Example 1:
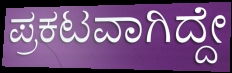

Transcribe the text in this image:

ಪ್ರಕಟವಾಗಿದ್ದೇ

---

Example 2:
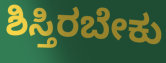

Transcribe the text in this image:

ಶಿಸ್ತಿರಬೇಕು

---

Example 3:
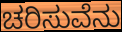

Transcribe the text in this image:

ಚರಿಸುವೆನು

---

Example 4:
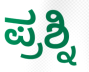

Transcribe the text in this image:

ಪ್ರಶ್ನಿ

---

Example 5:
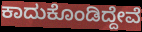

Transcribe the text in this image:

ಕಾದುಕೊಂಡಿದ್ದೇವೆ